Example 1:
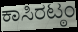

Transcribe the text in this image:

ಕಾಸಿರಟ್ಠಂ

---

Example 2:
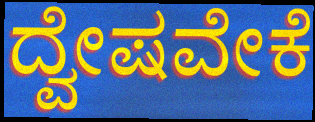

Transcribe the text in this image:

ದ್ವೇಷವೇಕೆ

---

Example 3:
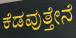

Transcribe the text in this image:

ಕೆಡವುತ್ತೇನೆ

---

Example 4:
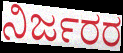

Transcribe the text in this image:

ನಿರ್ಜರರ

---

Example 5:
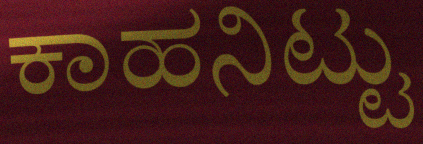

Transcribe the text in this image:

ಕಾಹನಿಟ್ಟು